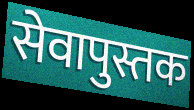
सेवापुस्तक